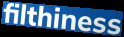
filthiness